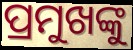
ପ୍ରମୁଖଙ୍କୁ